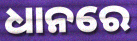
ଧାନରେ